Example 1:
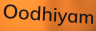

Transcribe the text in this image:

Oodhiyam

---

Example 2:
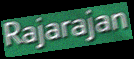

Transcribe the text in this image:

Rajarajan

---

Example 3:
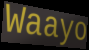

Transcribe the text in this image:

Waayo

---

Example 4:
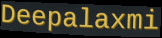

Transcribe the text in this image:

Deepalaxmi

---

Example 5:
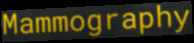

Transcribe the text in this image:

Mammography